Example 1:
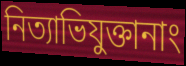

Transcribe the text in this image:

নিত্যাভিযুক্তানাং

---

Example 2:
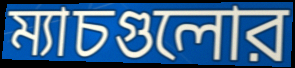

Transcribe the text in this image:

ম্যাচগুলোর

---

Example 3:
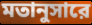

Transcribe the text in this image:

মতানুসারে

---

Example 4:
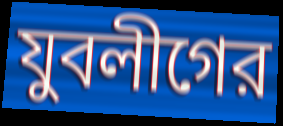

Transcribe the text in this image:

যুবলীগের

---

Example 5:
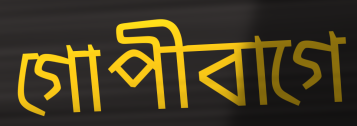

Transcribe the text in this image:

গোপীবাগে